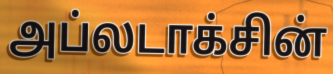
அப்லடாக்சின்